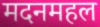
मदनमहल